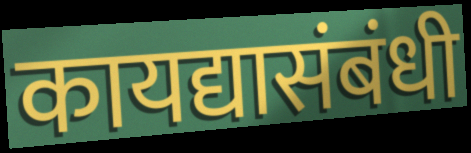
कायद्यासंबंधी